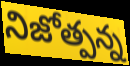
నిజోత్పన్న